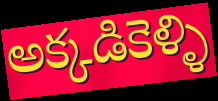
అక్కడికెళ్ళి